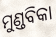
ମୁଣ୍ଡବିକା